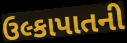
ઉલ્કાપાતની